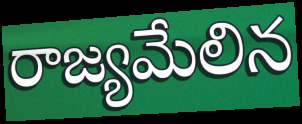
రాజ్యమేలిన